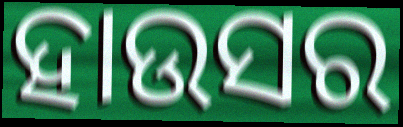
ହାଉସର